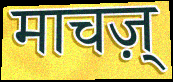
माचज़्